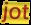
jot